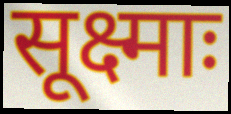
सूक्ष्माः